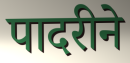
पादरीने